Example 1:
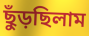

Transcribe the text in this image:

ছুঁড়ছিলাম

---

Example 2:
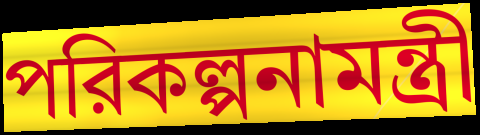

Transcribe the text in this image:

পরিকল্পনামন্ত্রী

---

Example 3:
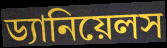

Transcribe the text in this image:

ড্যানিয়েলস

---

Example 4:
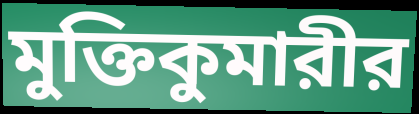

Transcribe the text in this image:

মুক্তিকুমারীর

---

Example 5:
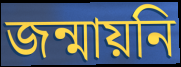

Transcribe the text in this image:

জন্মায়নি